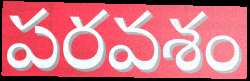
పరవశం